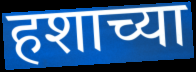
हशाच्या